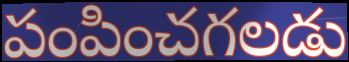
పంపించగలడు